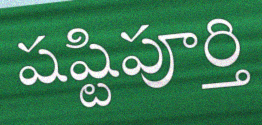
షష్టిపూర్తి